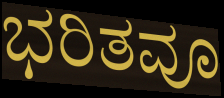
ಭರಿತವೂ